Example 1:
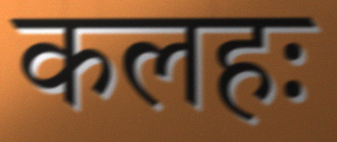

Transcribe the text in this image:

कलहः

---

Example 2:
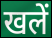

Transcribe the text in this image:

खलें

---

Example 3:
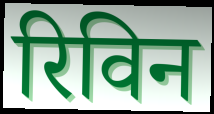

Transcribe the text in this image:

रिविन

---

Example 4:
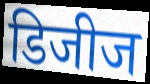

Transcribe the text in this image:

डिजीज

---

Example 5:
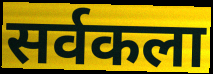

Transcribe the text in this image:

सर्वकला